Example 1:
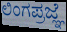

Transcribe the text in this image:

ಲಿಂಗಪ್ರಜ್ಞೆ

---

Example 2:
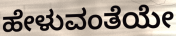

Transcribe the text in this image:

ಹೇಳುವಂತೆಯೇ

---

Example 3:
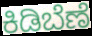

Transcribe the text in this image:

ಕಿಡಿಬೆಣೆ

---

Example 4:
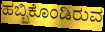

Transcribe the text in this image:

ಹಬ್ಬಿಕೊಂಡಿರುವ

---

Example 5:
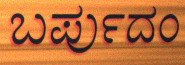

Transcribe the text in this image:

ಬರ್ಪುದಂ